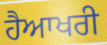
ਹੈਆਖਰੀ